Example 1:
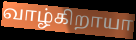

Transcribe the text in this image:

வாழ்கிறாயா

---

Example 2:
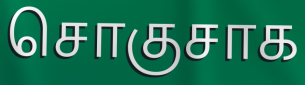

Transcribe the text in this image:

சொகுசாக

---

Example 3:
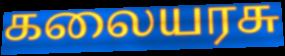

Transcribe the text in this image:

கலையரசு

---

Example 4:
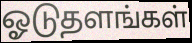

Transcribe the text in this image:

ஓடுதளங்கள்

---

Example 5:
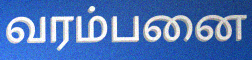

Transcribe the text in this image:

வரம்பனை